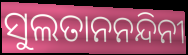
ସୁଲତାନନନ୍ଦିନୀ